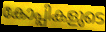
കോപ്പികളുടെ